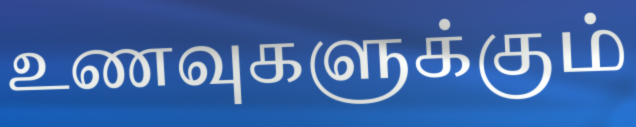
உணவுகளுக்கும்